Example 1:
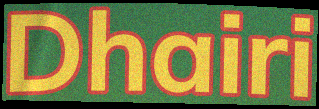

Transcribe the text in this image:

Dhairi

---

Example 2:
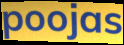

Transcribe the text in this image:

poojas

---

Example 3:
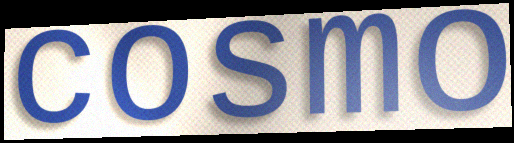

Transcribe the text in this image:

cosmo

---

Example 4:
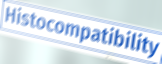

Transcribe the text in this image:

Histocompatibility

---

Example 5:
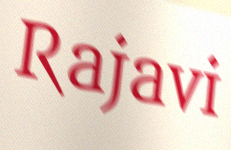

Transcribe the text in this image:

Rajavi